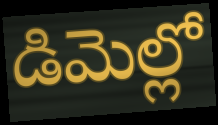
డిమెల్లో